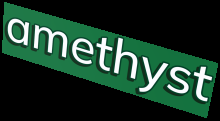
amethyst